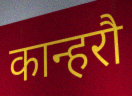
कान्हरौ